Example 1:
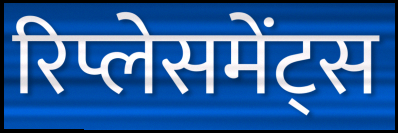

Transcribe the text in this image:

रिप्लेसमेंट्स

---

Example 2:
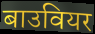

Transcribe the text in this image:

बाउवियर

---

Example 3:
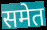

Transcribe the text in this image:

समेत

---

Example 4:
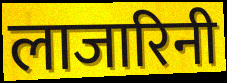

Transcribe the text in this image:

लाजारिनी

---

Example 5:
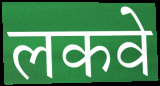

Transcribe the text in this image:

लकवे